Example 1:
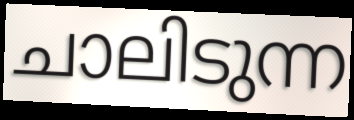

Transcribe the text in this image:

ചാലിടുന്ന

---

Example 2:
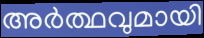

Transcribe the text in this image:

അർത്ഥവുമായി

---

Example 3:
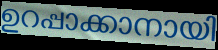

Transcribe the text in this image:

ഉറപ്പാക്കാനായി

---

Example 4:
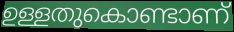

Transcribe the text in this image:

ഉള്ളതുകൊണ്ടാണ്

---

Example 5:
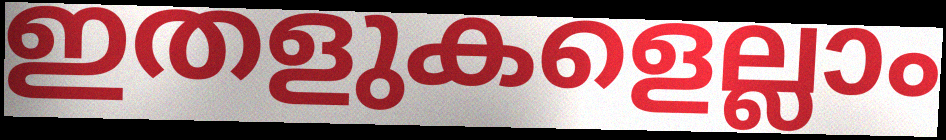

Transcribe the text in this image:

ഇതളുകളെല്ലാം